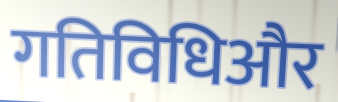
गतिविधिऔर